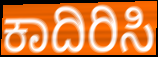
ಕಾದಿರಿಸಿ